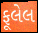
ફૂલેલ